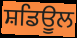
ਸ਼ਡਿਉੂਲ